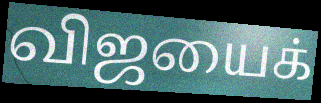
விஜயைக்